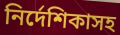
নির্দেশিকাসহ